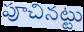
పూచినట్టు